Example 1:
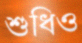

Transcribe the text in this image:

শুধিও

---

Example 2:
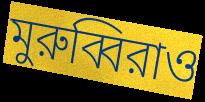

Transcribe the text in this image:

মুরুব্বিরাও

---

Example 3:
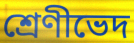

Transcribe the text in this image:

শ্রেণীভেদ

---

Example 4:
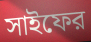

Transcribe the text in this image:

সাইফের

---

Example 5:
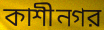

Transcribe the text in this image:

কাশীনগর